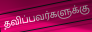
தவிப்பவர்களுக்கு